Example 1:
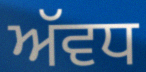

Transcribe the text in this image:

ਅੱਵਧ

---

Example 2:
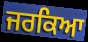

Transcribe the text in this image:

ਜਰਕਿਆ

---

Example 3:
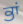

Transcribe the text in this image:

ਭਾਂ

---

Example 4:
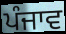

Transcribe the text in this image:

ਪੰਜਾਵ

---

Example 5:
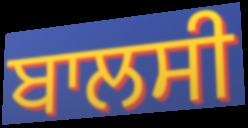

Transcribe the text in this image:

ਬਾਲਸੀ